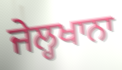
ਜੇਲ੍ਹਖਾਨਾ